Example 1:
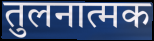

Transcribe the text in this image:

तुलनात्मक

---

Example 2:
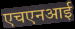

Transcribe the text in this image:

एचएनआई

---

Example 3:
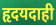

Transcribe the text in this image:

हृदयदाही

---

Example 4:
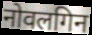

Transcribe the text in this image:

नोवलगिन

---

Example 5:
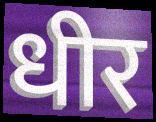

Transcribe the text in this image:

धीर